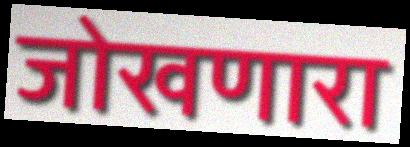
जोखणारा